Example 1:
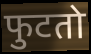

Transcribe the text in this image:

फुटतो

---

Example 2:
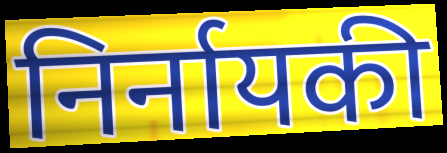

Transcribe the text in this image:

निर्नायकी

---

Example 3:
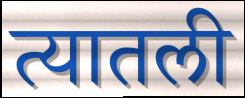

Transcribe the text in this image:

त्यातली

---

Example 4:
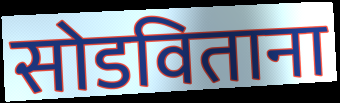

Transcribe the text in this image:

सोडविताना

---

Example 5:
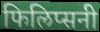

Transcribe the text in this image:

फिलिप्सनी